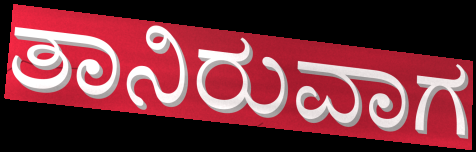
ತಾನಿರುವಾಗ